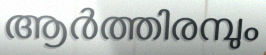
ആർത്തിരമ്പും